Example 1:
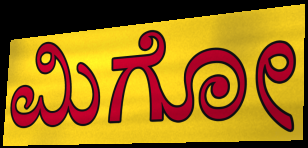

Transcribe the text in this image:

ಮಿಗೋ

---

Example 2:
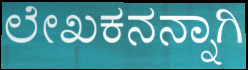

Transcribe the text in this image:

ಲೇಖಕನನ್ನಾಗಿ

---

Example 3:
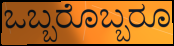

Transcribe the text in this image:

ಒಬ್ಬರೊಬ್ಬರೂ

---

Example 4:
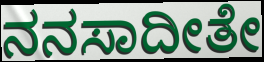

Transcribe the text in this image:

ನನಸಾದೀತೇ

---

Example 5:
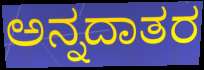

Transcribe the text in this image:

ಅನ್ನದಾತರ